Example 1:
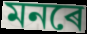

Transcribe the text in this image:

মনৰে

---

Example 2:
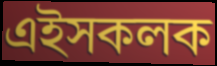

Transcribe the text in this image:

এইসকলক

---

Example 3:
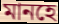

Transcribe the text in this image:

মানহে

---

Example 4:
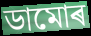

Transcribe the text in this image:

ডামোৰ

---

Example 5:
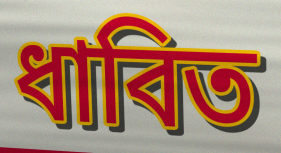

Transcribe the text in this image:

ধাবিত